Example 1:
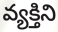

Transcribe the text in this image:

వ్యక్తిని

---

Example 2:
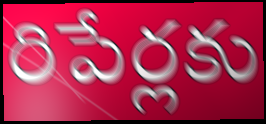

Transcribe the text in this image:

రిపేర్లకు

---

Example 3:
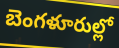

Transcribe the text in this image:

బెంగళూరుల్లో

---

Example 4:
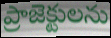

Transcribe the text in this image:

ప్రాజెక్టులను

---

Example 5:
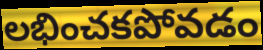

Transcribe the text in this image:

లభించకపోవడం